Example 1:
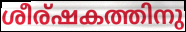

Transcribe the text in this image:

ശീര്ഷകത്തിനു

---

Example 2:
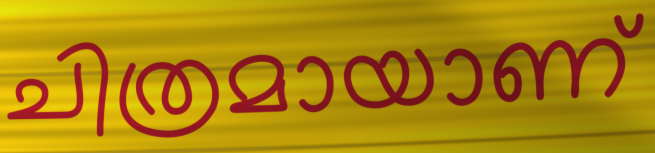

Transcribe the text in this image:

ചിത്രമായാണ്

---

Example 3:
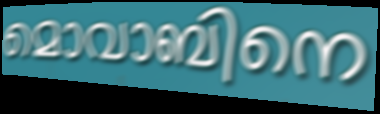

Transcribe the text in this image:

മൊവാബിനെ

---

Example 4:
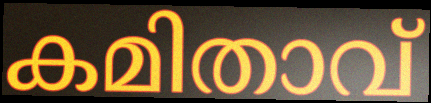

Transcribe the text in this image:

കമിതാവ്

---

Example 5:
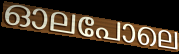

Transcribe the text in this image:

ഓലപോലെ